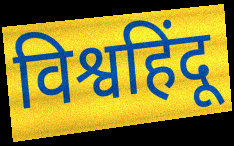
विश्वहिंदू